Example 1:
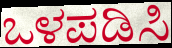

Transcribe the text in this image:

ಒಳಪಡಿಸಿ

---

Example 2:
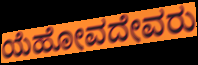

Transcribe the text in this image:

ಯೆಹೋವದೇವರು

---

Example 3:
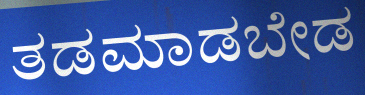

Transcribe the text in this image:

ತಡಮಾಡಬೇಡ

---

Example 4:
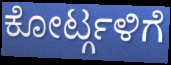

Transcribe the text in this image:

ಕೋರ್ಟ್ಗಳಿಗೆ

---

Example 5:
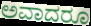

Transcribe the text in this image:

ಅವಾದರೂ